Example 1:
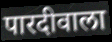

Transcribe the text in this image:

पारदीवाला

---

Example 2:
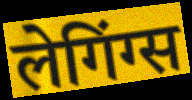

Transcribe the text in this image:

लेगिंग्स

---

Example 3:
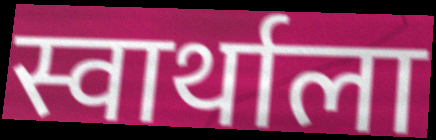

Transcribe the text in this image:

स्वार्थाला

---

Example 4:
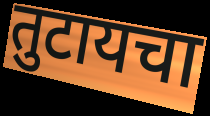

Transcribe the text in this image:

तुटायचा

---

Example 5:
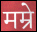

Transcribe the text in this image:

मम्रे